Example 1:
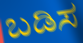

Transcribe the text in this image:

ಬಡಿಸ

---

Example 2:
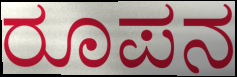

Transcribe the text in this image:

ರೂಪನ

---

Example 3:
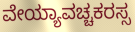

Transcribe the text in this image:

ವೇಯ್ಯಾವಚ್ಚಕರಸ್ಸ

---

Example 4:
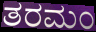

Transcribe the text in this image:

ತರಮಂ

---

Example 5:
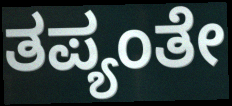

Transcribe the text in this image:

ತಪ್ಯಂತೇ